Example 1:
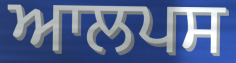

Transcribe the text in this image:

ਆਲਪਸ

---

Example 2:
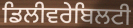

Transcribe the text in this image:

ਡਿਲੀਵਰੇਬਿਲਟੀ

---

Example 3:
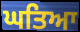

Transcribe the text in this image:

ਘਤਿਆ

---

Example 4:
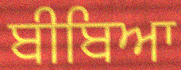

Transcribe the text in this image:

ਬੀਬਿਆ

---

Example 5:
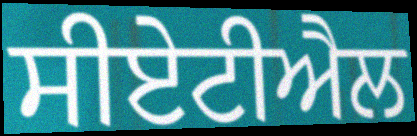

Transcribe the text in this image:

ਸੀਏਟੀਐਲ